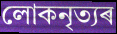
লোকনৃত্যৰ